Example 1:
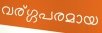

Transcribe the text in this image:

വര്ഗ്ഗപരമായ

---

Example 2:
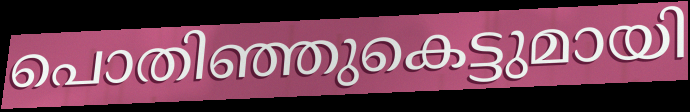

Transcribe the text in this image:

പൊതിഞ്ഞുകെട്ടുമായി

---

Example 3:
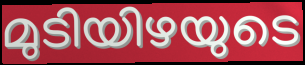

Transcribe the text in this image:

മുടിയിഴയുടെ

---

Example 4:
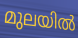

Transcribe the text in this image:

മുലയിൽ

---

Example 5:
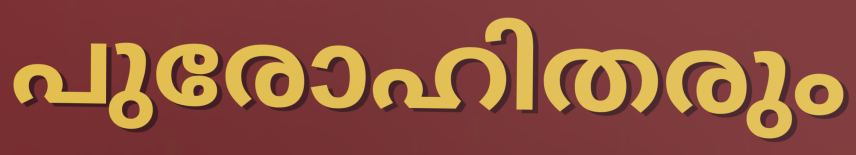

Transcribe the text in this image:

പുരോഹിതരും